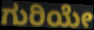
ಗುರಿಯೇ